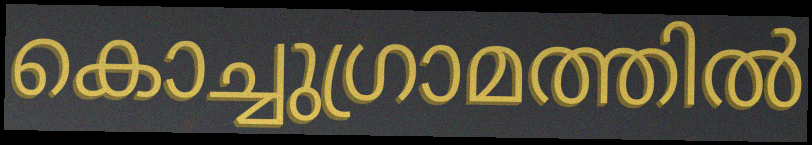
കൊച്ചുഗ്രാമത്തിൽ